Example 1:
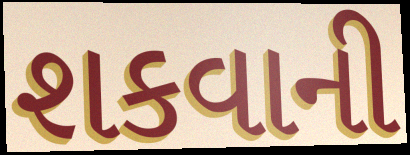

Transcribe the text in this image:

શકવાની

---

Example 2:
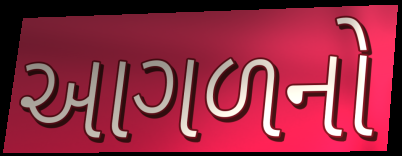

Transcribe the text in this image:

આગળનો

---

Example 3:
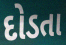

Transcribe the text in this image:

દોડતા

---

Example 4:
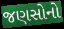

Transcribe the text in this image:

જણસોનો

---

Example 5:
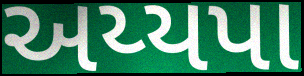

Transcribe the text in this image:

અય્યપા